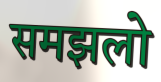
समझलो